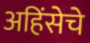
अहिंसेचे